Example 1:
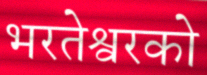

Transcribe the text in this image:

भरतेश्वरको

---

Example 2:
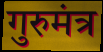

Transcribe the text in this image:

गुरुमंत्र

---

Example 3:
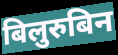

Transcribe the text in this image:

बिलुरुबिन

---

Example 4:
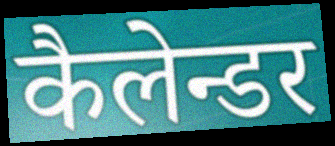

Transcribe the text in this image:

कैलेन्डर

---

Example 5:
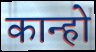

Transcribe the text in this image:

कान्हो